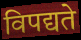
विपद्यते